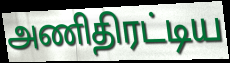
அணிதிரட்டிய